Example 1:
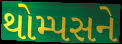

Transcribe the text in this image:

થોમ્પસને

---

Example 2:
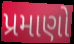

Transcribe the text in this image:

પ્રમાણો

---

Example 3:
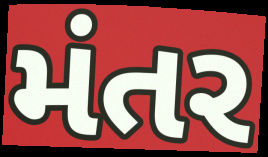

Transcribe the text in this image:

મંતર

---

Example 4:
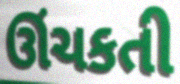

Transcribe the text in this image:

ઊંચકતી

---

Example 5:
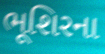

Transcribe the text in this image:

ભૂશિરના